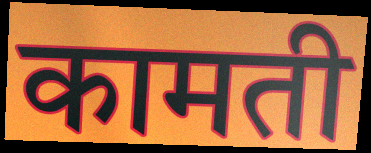
कामती